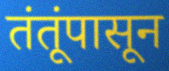
तंतूंपासून